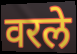
वरले